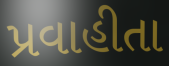
પ્રવાહીતા